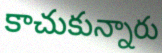
కాచుకున్నారు